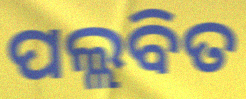
ପଲ୍ଲବିତ